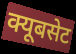
क्यूबसेट